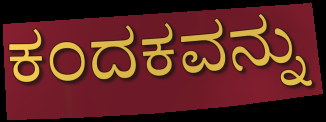
ಕಂದಕವನ್ನು